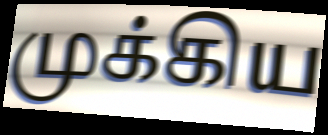
முக்கிய